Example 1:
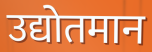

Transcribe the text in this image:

उद्योतमान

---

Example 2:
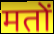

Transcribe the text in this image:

मतों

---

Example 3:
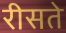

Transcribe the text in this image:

रीसते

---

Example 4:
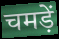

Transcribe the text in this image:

चमड़ें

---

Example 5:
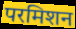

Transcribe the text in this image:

परमिशन